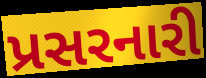
પ્રસરનારી